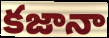
కజానా